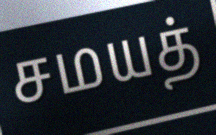
சமயத்